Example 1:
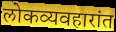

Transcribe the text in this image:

लोकव्यवहारांत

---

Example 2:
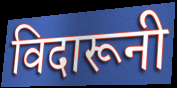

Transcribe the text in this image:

विदारूनी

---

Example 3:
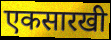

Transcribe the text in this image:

एकसारखी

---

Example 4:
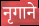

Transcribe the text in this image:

नृगाने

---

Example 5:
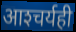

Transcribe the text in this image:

आश्‍चर्यही